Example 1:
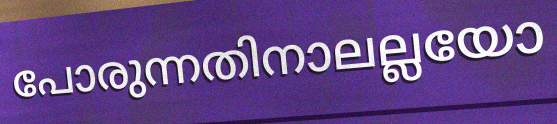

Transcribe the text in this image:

പോരുന്നതിനാലല്ലയോ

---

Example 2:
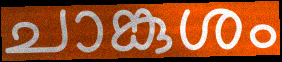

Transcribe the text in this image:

ചാങ്കുശം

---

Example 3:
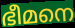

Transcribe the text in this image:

ഭീമനെ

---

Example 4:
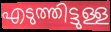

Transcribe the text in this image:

എടുത്തിട്ടുള്ള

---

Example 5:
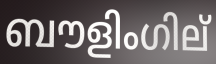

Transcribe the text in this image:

ബൗളിംഗില്